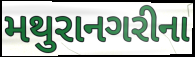
મથુરાનગરીના